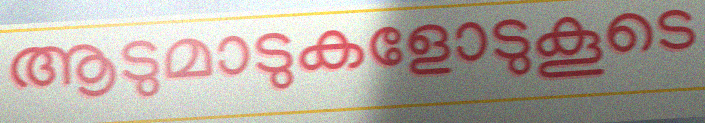
ആടുമാടുകളോടുകൂടെ